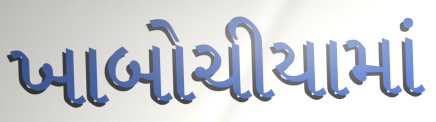
ખાબોચીયામાં